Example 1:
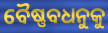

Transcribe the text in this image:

ବୈଷ୍ଣବଧନୁକୁ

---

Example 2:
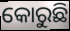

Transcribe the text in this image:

କୋରୁଛି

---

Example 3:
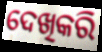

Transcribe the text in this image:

ଦେଖିକରି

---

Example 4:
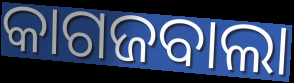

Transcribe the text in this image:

କାଗଜବାଲା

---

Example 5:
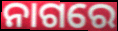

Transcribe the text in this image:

ନାଗରେ